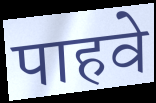
पाहवे